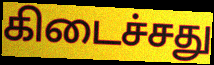
கிடைச்சது